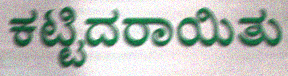
ಕಟ್ಟಿದರಾಯಿತು